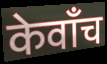
केवाँच